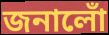
জনালোঁ